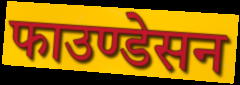
फाउण्डेसन